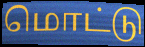
மொட்டு